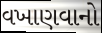
વખાણવાનો